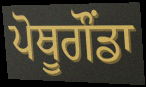
ਪੋਥੂਗੌਂਡਾ